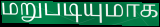
மறுபடியுமாக